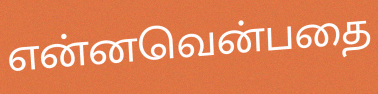
என்னவென்பதை